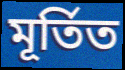
মূৰ্তিত